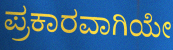
ಪ್ರಕಾರವಾಗಿಯೇ